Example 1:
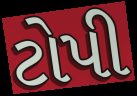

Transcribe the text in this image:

ટોપી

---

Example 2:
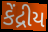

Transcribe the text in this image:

કેંદ્રીય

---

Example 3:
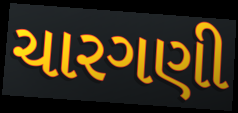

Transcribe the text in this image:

ચારગણી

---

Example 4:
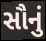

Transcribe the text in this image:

સૌનું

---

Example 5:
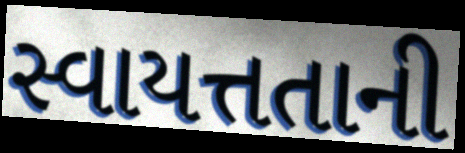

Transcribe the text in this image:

સ્વાયત્તતાની